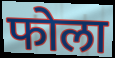
फोला